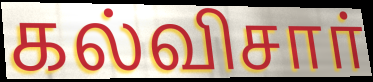
கல்விசார்